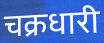
चक्रधारी